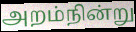
அறம்நின்று